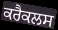
ਕਰੈਕਲਸ